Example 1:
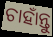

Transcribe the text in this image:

ଚାହାଁନ୍ତୁ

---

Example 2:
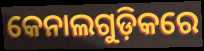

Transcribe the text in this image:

କେନାଲଗୁଡ଼ିକରେ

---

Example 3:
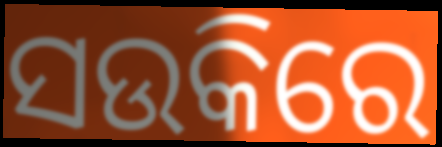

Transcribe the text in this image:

ସଉକିରେ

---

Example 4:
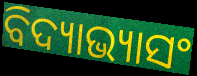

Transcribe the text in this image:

ବିଦ୍ୟାଭ୍ୟାସଂ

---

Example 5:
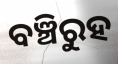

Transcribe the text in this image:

ବଞ୍ଚିରୁହ